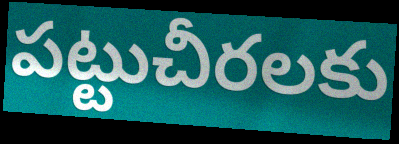
పట్టుచీరలకు